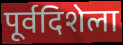
पूर्वदिशेला